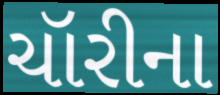
ચૉરીના